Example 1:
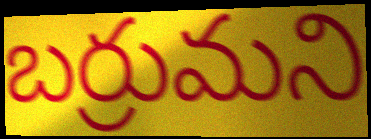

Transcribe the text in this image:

బర్రుమని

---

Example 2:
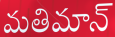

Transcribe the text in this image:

మతిమాన్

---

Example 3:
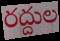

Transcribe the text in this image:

రద్దుల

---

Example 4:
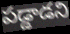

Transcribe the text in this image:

పడ్డాడని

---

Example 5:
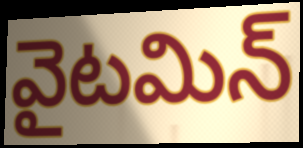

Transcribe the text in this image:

వైటమిన్